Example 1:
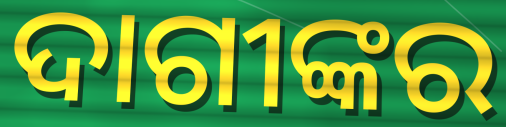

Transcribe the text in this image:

ଦାଗୀଙ୍କର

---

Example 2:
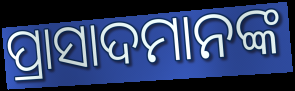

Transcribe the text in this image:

ପ୍ରାସାଦମାନଙ୍କ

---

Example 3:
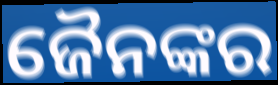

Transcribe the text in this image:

ଜୈନଙ୍କର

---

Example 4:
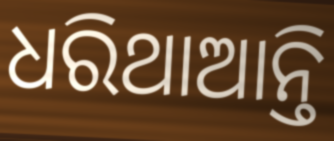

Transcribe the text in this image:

ଧରିଥାଆନ୍ତି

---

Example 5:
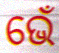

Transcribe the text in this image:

ଭେଁ